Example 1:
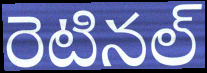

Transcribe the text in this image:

రెటినల్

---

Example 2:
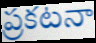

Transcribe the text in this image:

ప్రకటనా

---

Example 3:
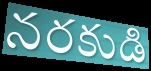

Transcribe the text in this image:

నరకుడి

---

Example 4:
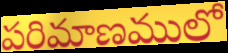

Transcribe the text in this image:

పరిమాణములో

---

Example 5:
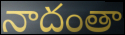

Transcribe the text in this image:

నాదంతా